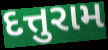
દત્તુરામ